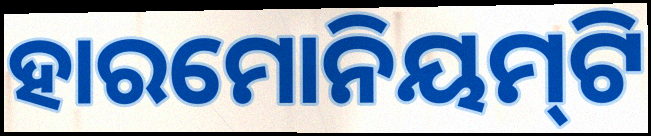
ହାରମୋନିୟମ୍‍ଟି